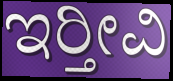
ಇರ‍್ತೀವಿ